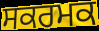
ਸਕਰਮਕ